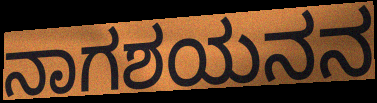
ನಾಗಶಯನನ